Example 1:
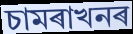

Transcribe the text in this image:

চামৰাখনৰ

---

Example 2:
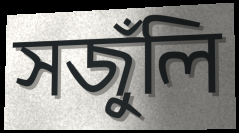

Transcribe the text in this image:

সজুঁলি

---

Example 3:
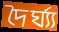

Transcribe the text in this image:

দৈৰ্ঘ্য্য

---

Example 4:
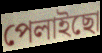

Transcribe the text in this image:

পেলাইছো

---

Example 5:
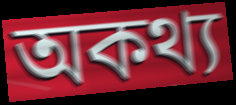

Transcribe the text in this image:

অকথ্য